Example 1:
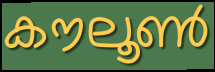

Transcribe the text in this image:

കൗലൂൺ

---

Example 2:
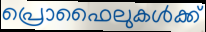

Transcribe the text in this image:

പ്രൊഫൈലുകൾക്ക്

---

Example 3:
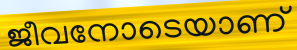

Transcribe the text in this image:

ജീവനോടെയാണ്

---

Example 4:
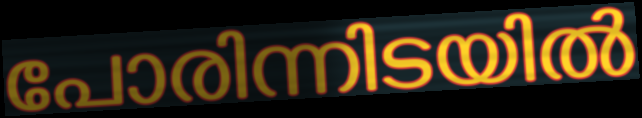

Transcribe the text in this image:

പോരിന്നിടയിൽ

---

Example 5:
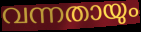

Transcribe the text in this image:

വന്നതായും